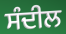
ਸੰਦੀਲ